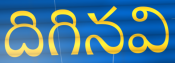
దిగినవి